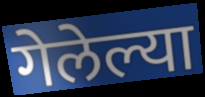
गेलेल्या